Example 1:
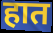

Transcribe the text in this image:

हात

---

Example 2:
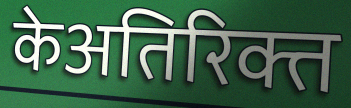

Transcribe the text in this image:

केअतिरिक्त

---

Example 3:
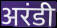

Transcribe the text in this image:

अरंडी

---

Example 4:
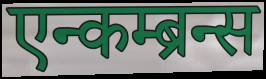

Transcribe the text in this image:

एन्कम्ब्रन्स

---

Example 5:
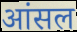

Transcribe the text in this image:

आंसल